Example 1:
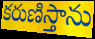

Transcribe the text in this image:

కరుణిస్తాను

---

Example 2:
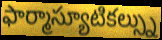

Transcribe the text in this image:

ఫార్మాస్యూటికల్స్ను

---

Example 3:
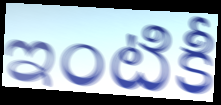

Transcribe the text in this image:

ఇంటికీ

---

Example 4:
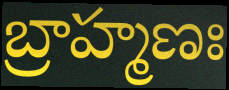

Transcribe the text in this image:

బ్రాహ్మణః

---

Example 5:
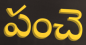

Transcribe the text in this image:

పంచె